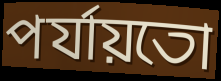
পৰ্যায়তো